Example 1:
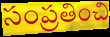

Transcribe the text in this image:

సంప్రతించి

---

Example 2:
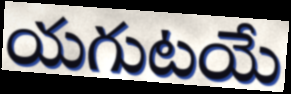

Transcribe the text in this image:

యగుటయే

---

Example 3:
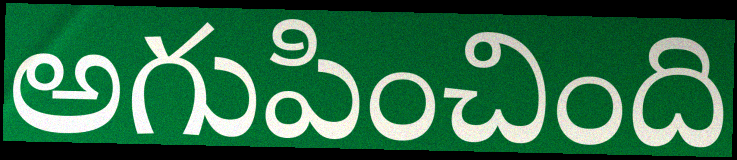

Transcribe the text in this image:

అగుపించింది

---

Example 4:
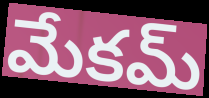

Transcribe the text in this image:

మేకమ్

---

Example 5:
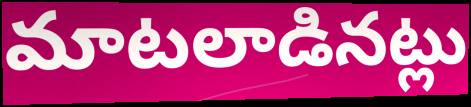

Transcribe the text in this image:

మాటలాడినట్లు